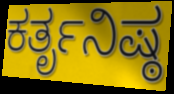
ಕರ್ತೃನಿಷ್ಠ